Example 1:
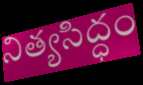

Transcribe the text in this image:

నిత్యసిద్ధం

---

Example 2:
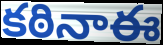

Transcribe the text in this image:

కఠినాఈ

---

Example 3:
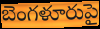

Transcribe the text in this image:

బెంగళూరుపై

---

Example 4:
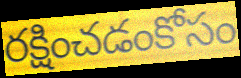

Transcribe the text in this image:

రక్షించడంకోసం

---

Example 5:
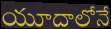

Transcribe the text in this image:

యూదాలోనే